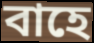
বাহে